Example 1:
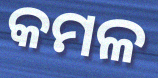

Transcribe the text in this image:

କମଳ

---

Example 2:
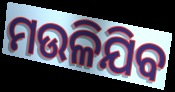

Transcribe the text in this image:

ମଉଳିଯିବ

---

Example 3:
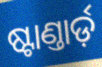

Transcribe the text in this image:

ଷ୍ଟାଣ୍ତାର୍ଡ଼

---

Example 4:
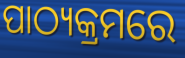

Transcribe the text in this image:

ପାଠ୍ୟକ୍ରମରେ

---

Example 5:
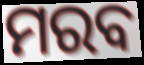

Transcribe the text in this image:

ମରବ